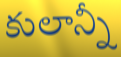
కులాన్నీ